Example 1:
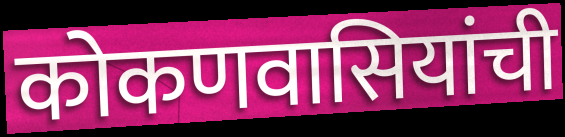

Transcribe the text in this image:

कोकणवासियांची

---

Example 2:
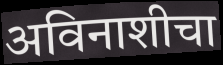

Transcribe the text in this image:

अविनाशीचा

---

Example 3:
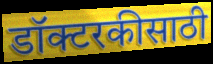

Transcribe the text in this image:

डॉक्टरकीसाठी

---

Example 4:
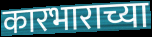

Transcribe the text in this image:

कारभाराच्या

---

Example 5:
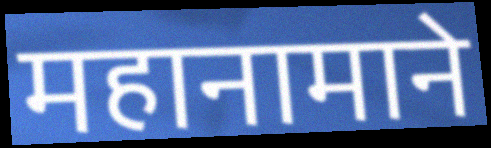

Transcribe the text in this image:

महानामाने